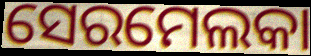
ସେରମେଲକା